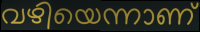
വഴിയെന്നാണ്